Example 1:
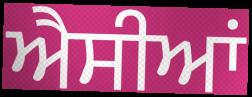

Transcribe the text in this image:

ਐਸੀਆਂ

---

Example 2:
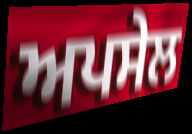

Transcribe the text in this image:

ਅਪਸੇਲ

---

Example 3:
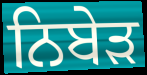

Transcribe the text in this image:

ਨਿਬੇੜ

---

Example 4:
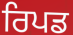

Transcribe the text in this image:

ਰਿਪਡ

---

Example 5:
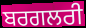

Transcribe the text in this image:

ਬਰਗਲਰੀ